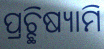
ପ୍ରଚ୍ଛିଷ୍ୟାମି